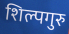
शिल्पगुरु